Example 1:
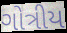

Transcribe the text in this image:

ગોત્રીય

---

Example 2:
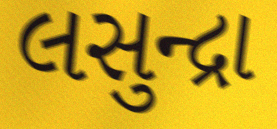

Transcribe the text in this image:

લસુન્દ્રા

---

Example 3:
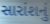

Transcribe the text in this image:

સારાંશનું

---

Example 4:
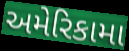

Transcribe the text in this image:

અમેરિકામા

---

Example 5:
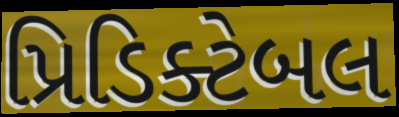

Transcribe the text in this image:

પ્રિડિક્ટેબલ